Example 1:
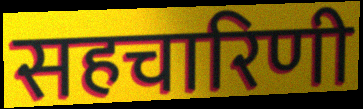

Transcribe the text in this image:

सहचारिणी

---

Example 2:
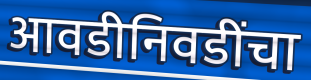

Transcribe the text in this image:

आवडीनिवडींचा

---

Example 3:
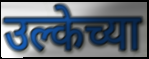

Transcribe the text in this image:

उल्केच्या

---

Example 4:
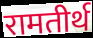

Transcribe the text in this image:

रामतीर्थ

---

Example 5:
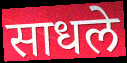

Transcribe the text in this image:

साधले